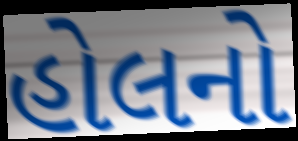
હોલનો